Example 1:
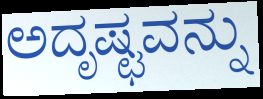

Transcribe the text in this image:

ಅದೃಷ್ಟವನ್ನು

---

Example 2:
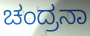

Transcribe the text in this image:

ಚಂದ್ರನಾ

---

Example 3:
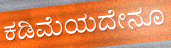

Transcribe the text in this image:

ಕಡಿಮೆಯದೇನೂ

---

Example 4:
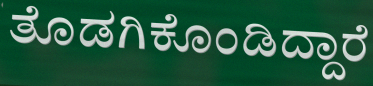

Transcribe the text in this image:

ತೊಡಗಿಕೊಂಡಿದ್ದಾರೆ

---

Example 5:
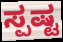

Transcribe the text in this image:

ಸ್ಪಷ್ಟ